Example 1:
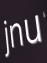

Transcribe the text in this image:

jnu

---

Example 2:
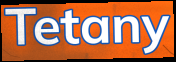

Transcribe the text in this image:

Tetany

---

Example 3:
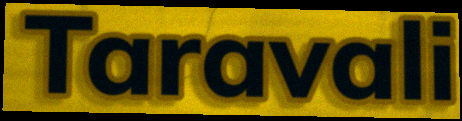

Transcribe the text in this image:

Taravali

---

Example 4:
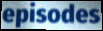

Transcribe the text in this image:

episodes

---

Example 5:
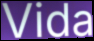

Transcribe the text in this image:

Vida